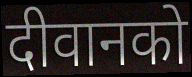
दीवानको